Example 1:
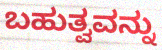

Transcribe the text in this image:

ಬಹುತ್ವವನ್ನು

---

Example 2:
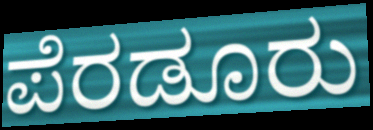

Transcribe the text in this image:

ಪೆರಡೂರು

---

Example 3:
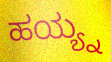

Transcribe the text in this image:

ಹಯ್ಯ್ನ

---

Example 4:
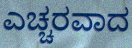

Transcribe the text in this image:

ಎಚ್ಚರವಾದ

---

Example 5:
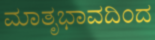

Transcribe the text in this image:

ಮಾತೃಭಾವದಿಂದ